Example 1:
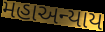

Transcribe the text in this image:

મહાઅન્યાય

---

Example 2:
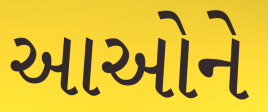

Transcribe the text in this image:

આઓને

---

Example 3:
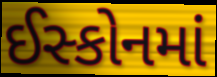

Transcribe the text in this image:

ઈસ્કોનમાં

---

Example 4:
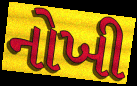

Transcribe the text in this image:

નોખી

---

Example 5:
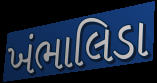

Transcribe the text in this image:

ખંભાલિડા